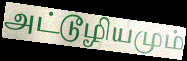
அட்டூழியமும்